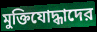
মুক্তিযোদ্ধাদের